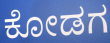
ಕೋಡಗ